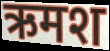
ऋमश